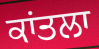
ਕਾਂਤਲਾ